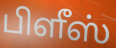
பிளீஸ்